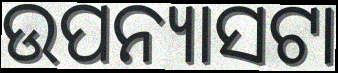
ଉପନ୍ୟାସଟା